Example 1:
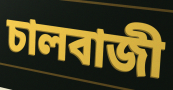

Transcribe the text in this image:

চালবাজী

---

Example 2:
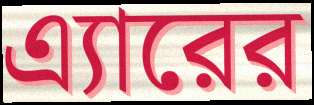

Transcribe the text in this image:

এ্যারের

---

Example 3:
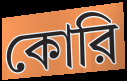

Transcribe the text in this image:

কোরি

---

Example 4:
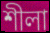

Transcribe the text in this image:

শীলা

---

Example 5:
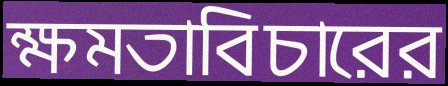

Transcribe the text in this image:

ক্ষমতাবিচারের